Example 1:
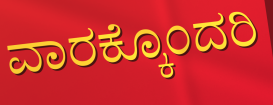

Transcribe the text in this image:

ವಾರಕ್ಕೊಂದರಿ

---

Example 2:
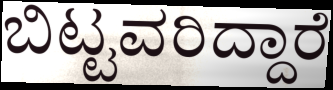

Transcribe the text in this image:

ಬಿಟ್ಟವರಿದ್ದಾರೆ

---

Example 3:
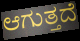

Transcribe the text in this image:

ಆಗುತ್ತದೆ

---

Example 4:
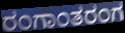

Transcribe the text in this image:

ರಂಗಾಂತರಂಗ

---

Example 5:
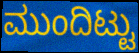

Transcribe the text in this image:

ಮುಂದಿಟ್ಟು